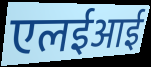
एलईआई